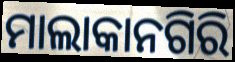
ମାଲାକାନଗିରି